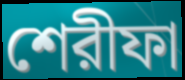
শেরীফা